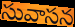
సువాసన